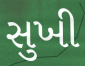
સુખી